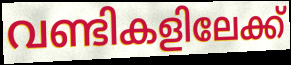
വണ്ടികളിലേക്ക്